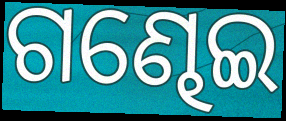
ଗଣ୍ଢେଇ